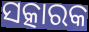
ସତ୍କାରକ